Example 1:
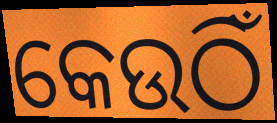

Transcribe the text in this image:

କେଉଠିଁ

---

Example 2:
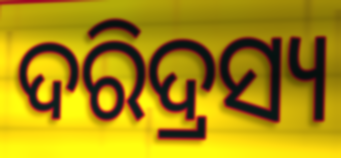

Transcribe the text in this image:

ଦରିଦ୍ରସ୍ୟ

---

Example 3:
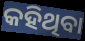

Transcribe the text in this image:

କହିଥିବା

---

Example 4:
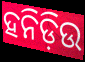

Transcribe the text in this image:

ହନିଡ଼ିଉ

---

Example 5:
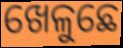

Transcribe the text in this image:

ଖେଳୁଛେ